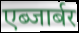
एब्जार्बर